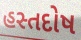
હસ્તદોષ